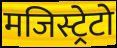
मजिस्ट्रेटो